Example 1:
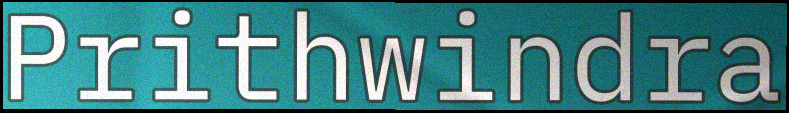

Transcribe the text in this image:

Prithwindra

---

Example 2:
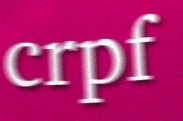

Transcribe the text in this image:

crpf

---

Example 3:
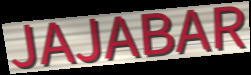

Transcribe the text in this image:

JAJABAR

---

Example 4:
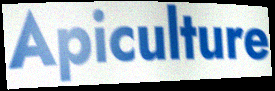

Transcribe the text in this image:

Apiculture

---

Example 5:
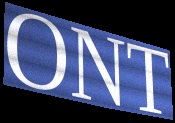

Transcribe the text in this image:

ONT